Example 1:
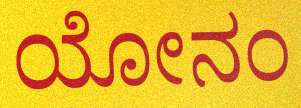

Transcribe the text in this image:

ಯೋನಂ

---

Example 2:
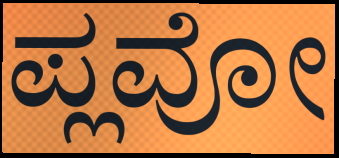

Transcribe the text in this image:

ಪ್ಲವೋ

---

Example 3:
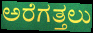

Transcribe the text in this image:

ಅರೆಗತ್ತಲು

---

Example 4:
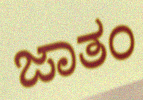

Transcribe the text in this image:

ಜಾತಂ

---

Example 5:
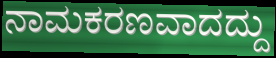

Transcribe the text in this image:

ನಾಮಕರಣವಾದದ್ದು